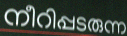
നീറിപ്പടരുന്ന